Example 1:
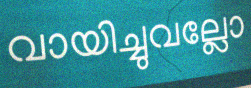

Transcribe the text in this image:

വായിച്ചുവല്ലോ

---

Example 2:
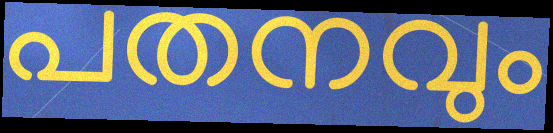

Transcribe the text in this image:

പതനവും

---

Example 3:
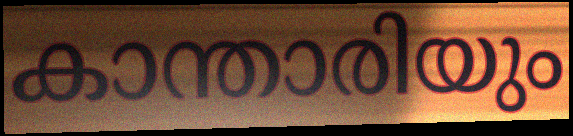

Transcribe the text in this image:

കാന്താരിയും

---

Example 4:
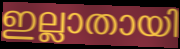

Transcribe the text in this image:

ഇല്ലാതായി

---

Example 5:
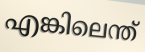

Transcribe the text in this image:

എങ്കിലെന്ത്